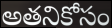
అతనికోసం